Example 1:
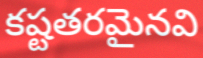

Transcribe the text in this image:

కష్టతరమైనవి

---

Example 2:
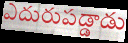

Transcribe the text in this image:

ఎదురుపడ్డాడు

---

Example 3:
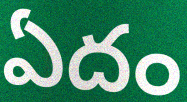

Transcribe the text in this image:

ఏదం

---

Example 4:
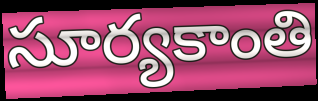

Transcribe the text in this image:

సూర్యకాంతి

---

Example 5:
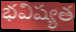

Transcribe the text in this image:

భవిష్యత